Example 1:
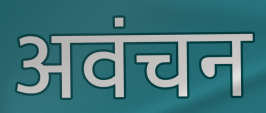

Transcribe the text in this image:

अवंचन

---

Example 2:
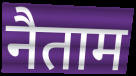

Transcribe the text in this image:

नैताम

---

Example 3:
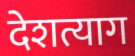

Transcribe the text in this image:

देशत्याग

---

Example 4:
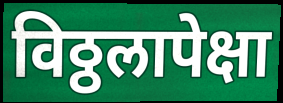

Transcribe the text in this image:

विठ्ठलापेक्षा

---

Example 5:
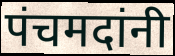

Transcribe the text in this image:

पंचमदांनी